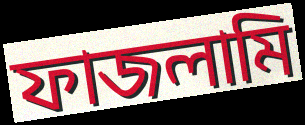
ফাজলামি